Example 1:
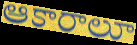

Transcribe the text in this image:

ఆకారాలూ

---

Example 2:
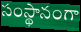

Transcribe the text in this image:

సంస్థానంగా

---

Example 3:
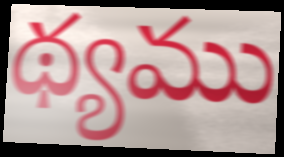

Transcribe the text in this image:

థ్యము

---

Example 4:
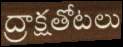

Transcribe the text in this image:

ద్రాక్షతోటలు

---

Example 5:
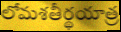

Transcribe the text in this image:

లోమశతీర్థయాత్ర